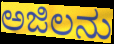
ಅಜಿಲನು